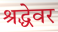
श्रद्धेवर